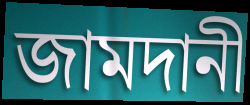
জামদানী